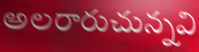
అలరారుచున్నవి